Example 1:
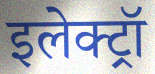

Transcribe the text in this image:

इलेक्ट्रॉ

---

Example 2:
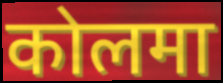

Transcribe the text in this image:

कोलमा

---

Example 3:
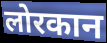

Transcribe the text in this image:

लोरकान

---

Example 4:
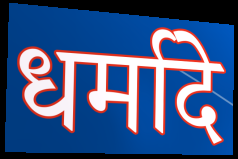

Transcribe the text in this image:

धर्मादे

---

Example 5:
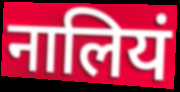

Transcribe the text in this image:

नालियं